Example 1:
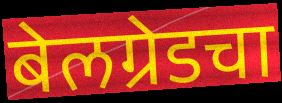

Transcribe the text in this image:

बेलग्रेडचा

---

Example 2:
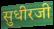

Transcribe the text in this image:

सुधीरजी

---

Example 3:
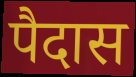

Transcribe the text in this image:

पैदास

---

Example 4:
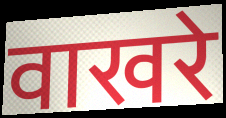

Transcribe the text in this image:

वाखरे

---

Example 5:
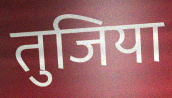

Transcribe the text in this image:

तुजिया